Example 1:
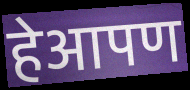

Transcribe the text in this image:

हेआपण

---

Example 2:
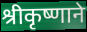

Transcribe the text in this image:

श्रीकृष्णाने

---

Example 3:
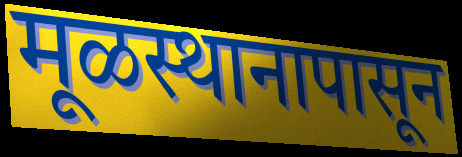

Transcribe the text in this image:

मूळस्थानापासून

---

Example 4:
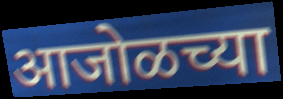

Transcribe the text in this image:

आजोळच्या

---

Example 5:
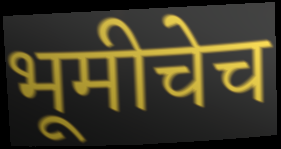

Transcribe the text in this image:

भूमीचेच